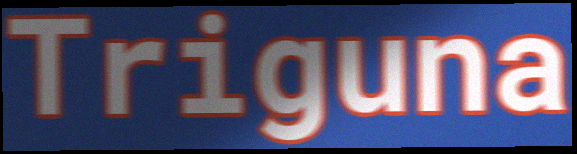
Triguna